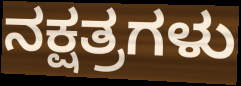
ನಕ್ಷತ್ರಗಳು